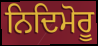
ਨਿਦਿਮੋਰੂ